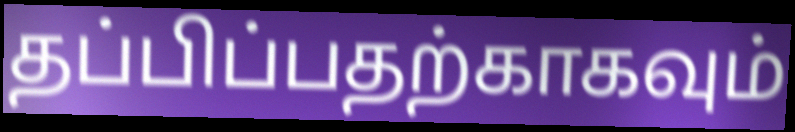
தப்பிப்பதற்காகவும்